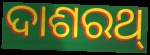
ଦାଶରଥ୍